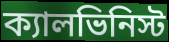
ক্যালভিনিস্ট